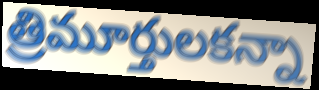
త్రిమూర్తులకన్నా